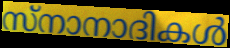
സ്നാനാദികൾ